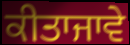
ਕੀਤਾਜਾਵੇ